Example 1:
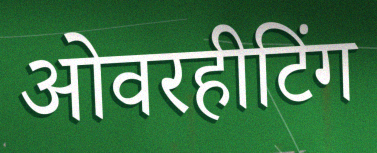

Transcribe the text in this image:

ओवरहीटिंग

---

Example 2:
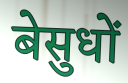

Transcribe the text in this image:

बेसुधों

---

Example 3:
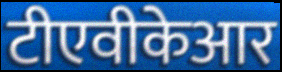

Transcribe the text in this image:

टीएवीकेआर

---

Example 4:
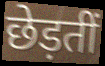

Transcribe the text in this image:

छेड़तीं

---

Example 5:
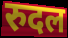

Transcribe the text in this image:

रुदल